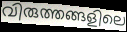
വിരുത്തങ്ങളിലെ